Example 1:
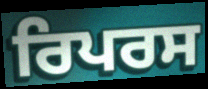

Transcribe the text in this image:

ਰਿਪਰਸ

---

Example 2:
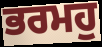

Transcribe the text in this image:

ਭਰਮਹੁ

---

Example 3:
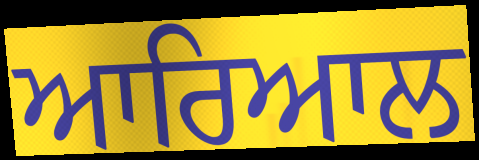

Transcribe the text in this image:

ਆਰਿਆਲ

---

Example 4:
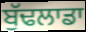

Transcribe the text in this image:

ਬੁੱਢਲਾਡਾ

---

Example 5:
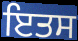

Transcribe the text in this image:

ਇਤਸ